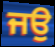
ਜਉ